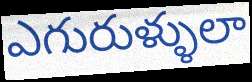
ఎగురుళ్ళులా